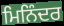
ਮਿਨਿੰਦਰ